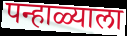
पन्हाळ्याला